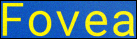
Fovea